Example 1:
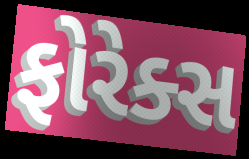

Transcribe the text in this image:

ફોરેક્સ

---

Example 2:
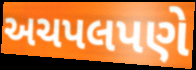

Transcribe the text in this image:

અચપલપણે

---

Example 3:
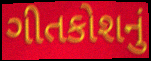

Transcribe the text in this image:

ગીતકોશનું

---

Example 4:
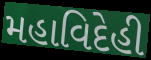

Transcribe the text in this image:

મહાવિદેહી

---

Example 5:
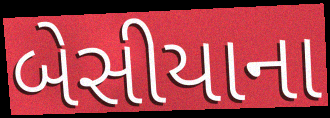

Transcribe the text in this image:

બેસીયાના